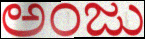
ಅಂಜು